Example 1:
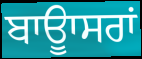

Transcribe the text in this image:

ਬਾਊਾਸਰਾਂ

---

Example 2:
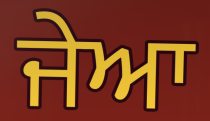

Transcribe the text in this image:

ਜੇਆ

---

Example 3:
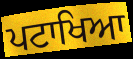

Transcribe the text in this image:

ਪਟਾਖਿਆ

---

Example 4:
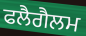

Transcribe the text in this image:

ਫਲੈਗੈਲਮ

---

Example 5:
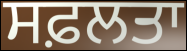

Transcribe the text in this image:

ਸਫ਼ਲਤਾ